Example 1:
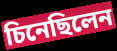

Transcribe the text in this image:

চিনেছিলেন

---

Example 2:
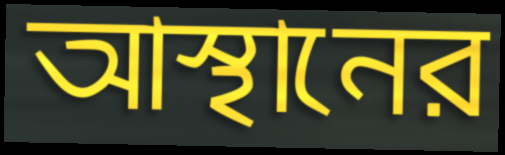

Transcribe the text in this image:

আস্থানের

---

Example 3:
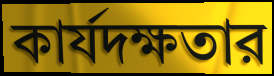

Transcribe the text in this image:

কার্যদক্ষতার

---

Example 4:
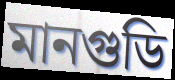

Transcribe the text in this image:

মানগুডি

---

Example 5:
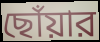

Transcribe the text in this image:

ছোঁয়ার